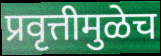
प्रवृत्तीमुळेच